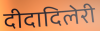
दीदादिलेरी